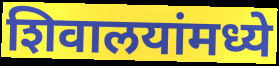
शिवालयांमध्ये